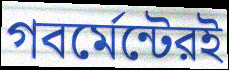
গবর্মেন্টেরই